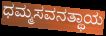
ಧಮ್ಮಸವನತ್ಥಾಯ